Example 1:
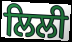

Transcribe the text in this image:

ਲਿਲੀ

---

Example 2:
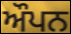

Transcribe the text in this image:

ਔਪਨ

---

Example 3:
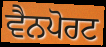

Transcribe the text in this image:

ਵੈਨਪੋਰਟ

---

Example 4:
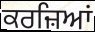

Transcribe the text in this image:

ਕਰਜ਼ਿਆਂ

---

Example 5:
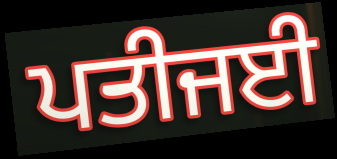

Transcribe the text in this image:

ਪਤੀਜਈ